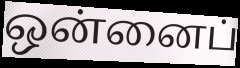
ஒன்னைப்